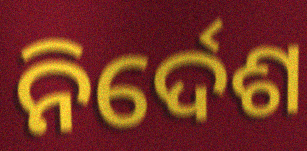
ନିର୍ଦେଶ